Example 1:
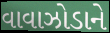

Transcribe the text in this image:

વાવાઝોડાને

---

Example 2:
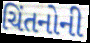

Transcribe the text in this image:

ચિંતનોની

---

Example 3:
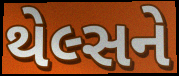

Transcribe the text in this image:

થેલ્સને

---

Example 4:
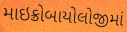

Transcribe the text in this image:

માઇક્રોબાયોલોજીમાં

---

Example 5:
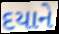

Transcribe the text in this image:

દયાને